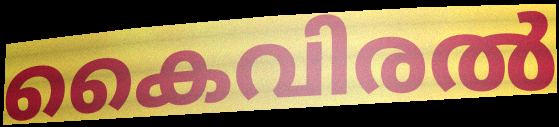
കൈവിരൽ